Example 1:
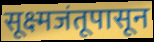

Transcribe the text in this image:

सूक्ष्मजंतूपासून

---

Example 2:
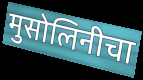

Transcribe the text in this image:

मुसोलिनीचा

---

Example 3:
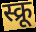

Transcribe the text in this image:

स्क्रू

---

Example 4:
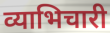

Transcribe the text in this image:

व्याभिचारी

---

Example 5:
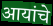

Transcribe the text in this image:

आयांचे